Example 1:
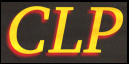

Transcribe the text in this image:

CLP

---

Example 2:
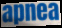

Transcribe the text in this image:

apnea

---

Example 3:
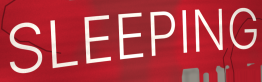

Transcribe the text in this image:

SLEEPING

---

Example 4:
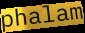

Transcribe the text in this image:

phalam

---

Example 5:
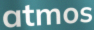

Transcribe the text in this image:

atmos